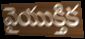
వైయుక్తిక